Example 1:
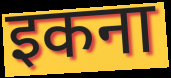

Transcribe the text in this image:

इकना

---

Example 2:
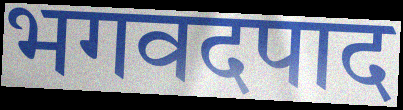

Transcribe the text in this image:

भगवदपाद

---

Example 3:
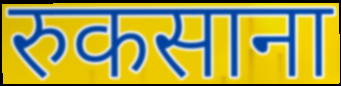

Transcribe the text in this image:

रुकसाना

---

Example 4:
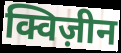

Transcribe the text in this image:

क्विज़ीन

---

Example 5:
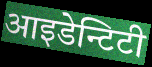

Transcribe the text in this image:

आइडेन्टिटी